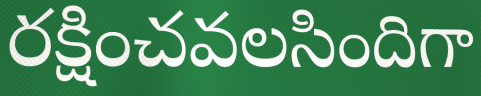
రక్షించవలసిందిగా